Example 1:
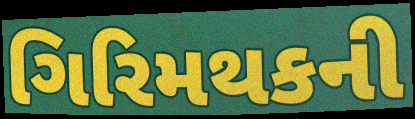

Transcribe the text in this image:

ગિરિમથકની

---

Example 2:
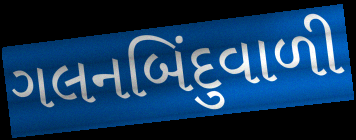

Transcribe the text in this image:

ગલનબિંદુવાળી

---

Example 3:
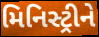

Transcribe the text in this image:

મિનિસ્ટ્રીને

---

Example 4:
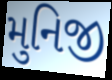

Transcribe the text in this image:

મુનિજી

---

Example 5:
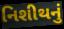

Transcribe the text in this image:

નિશીથનું